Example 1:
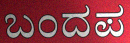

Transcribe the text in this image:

ಬಂದಪ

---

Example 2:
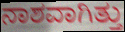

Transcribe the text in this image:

ನಾಶವಾಗಿತ್ತು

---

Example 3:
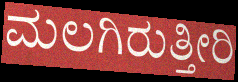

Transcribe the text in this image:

ಮಲಗಿರುತ್ತೀರಿ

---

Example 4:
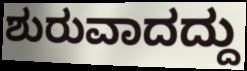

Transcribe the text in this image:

ಶುರುವಾದದ್ದು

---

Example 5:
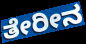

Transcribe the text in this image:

ತೇರೀನ